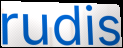
rudis